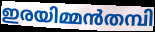
ഇരയിമ്മൻതമ്പി